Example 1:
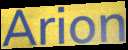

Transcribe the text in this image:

Arion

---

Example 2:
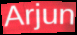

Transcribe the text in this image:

Arjun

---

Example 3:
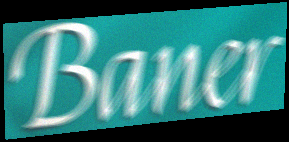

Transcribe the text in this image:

Baner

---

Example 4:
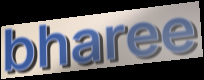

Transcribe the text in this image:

bharee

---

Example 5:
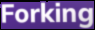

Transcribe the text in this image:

Forking